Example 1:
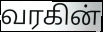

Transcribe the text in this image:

வரகின்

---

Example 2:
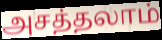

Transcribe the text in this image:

அசத்தலாம்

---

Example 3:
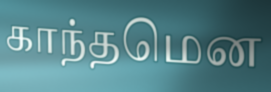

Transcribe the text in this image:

காந்தமென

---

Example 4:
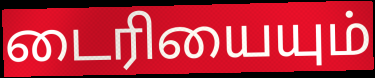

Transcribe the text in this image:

டைரியையும்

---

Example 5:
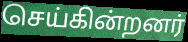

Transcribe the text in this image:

செய்கின்றனர்